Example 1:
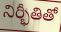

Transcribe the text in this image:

నిర్భీతితో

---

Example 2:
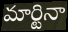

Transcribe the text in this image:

మార్టినా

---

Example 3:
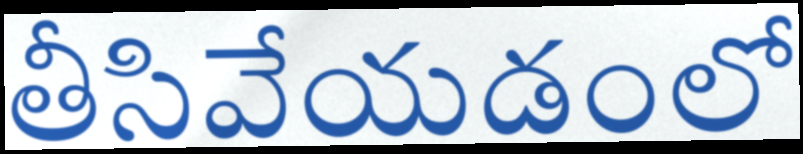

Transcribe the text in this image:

తీసివేయడంలో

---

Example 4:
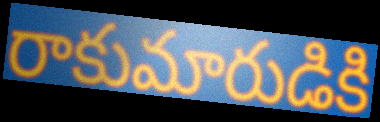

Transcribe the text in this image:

రాకుమారుడికి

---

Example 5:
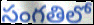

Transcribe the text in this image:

సంగతిలో